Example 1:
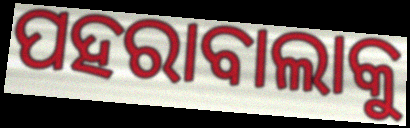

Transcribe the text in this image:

ପହରାବାଲାକୁ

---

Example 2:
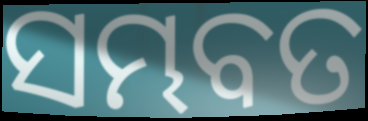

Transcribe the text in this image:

ସମ୍ଭବତ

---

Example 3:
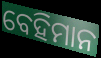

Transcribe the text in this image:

ବେହିମାନ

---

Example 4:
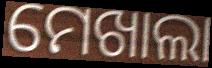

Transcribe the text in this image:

ମେଖାଲା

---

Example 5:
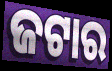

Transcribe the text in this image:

ଜଟାର